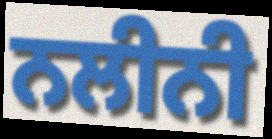
ਨਲੀਨੀ